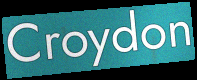
Croydon